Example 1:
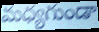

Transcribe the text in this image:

మధ్యగుండా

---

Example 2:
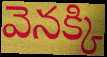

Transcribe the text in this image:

వెనక్కి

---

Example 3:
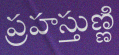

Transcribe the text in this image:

ప్రహస్తుణ్ణి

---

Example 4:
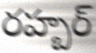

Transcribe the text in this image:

రహ్బర్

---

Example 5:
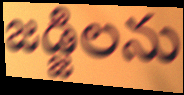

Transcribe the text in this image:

జడ్జిలను